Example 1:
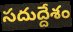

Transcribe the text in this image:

సదుద్దేశం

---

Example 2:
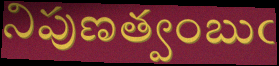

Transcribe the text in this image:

నిపుణత్వంబుఁ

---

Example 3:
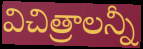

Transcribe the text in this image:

విచిత్రాలన్నీ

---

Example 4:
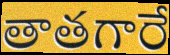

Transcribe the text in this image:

తాతగారే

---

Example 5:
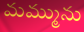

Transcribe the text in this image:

మమ్మును